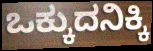
ಒಕ್ಕುದನಿಕ್ಕಿ